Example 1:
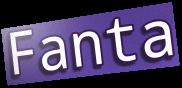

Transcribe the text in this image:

Fanta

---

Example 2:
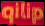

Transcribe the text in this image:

qilip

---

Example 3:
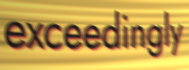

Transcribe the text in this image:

exceedingly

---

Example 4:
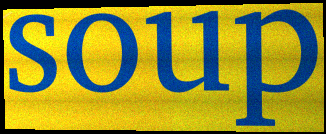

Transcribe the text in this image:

soup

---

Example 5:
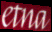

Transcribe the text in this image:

etna